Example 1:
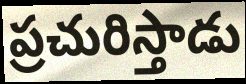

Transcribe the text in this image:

ప్రచురిస్తాడు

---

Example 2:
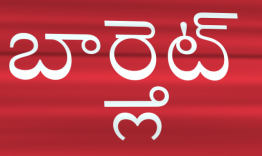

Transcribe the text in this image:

బార్త్లెట్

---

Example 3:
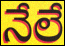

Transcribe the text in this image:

నేలే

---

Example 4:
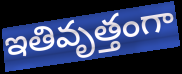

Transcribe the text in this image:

ఇతివృత్తంగా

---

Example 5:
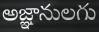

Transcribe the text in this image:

అజ్ఞానులగు